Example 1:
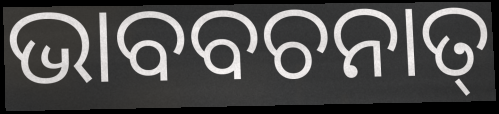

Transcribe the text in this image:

ଭାବବଚନାତ୍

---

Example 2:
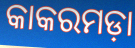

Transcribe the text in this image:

କାକରମଡ଼ା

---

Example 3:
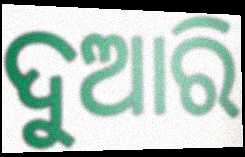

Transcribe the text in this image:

ଦୁଆରି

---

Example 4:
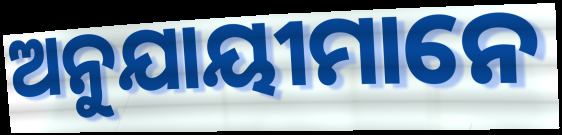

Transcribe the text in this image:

ଅନୁଯାୟୀମାନେ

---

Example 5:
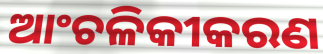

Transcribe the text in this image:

ଆଂଚଳିକୀକରଣ